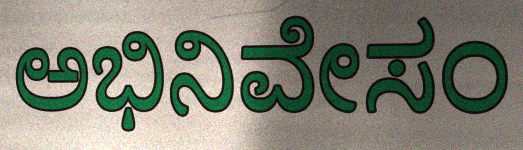
ಅಭಿನಿವೇಸಂ